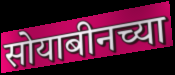
सोयाबीनच्या